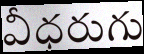
వీధరుగు